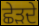
ਛੇੜਦੇ